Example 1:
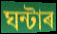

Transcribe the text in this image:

ঘন্টাৰ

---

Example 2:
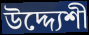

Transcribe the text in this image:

উদ্দ্যেশী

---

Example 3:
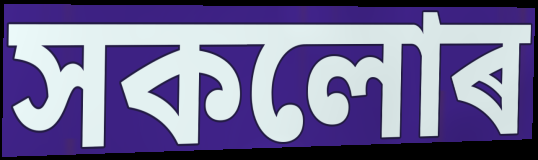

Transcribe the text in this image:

সকলোৰ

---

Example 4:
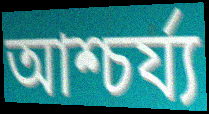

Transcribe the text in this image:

আশ্চৰ্য্য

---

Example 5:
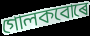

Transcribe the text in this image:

গোলকবোৰে